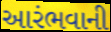
આરંભવાની